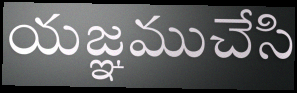
యజ్ఞముచేసి